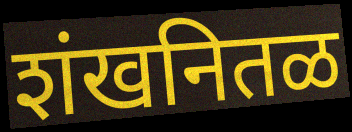
शंखनितळ